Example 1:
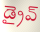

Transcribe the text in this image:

డ్రైవ్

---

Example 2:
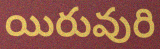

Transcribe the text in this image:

యిరువురి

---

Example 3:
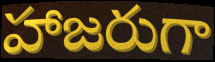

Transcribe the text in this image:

హాజరుగా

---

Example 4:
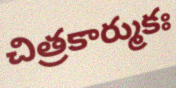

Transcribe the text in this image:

చిత్రకార్ముకః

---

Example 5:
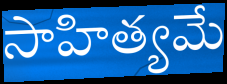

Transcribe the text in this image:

సాహిత్యమే